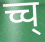
च्च्